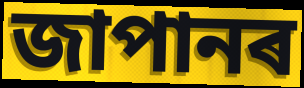
জাপানৰ